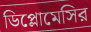
ডিপ্লোমেসির